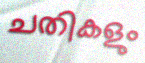
ചതികളും